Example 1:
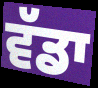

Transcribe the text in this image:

ਵੱਡਾ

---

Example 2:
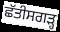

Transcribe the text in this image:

ਛੱਤੀਸਗੜ੍ਹ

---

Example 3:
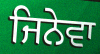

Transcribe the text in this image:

ਜਿਨੇਵਾ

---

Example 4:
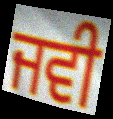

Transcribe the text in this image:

ਜਵੀ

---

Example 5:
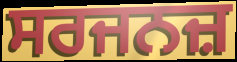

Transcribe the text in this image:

ਸਰਜਨਜ਼